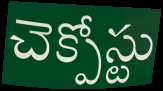
చెక్పోస్టు